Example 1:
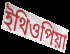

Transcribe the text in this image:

ইথিওপিয়া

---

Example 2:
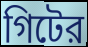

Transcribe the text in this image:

গিটের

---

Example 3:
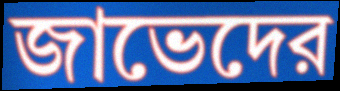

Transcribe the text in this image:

জাভেদের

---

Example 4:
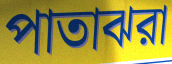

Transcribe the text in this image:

পাতাঝরা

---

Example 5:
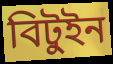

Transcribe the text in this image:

বিটুইন